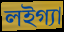
লইগ্যা